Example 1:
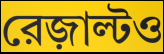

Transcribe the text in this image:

রেজ়াল্টও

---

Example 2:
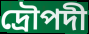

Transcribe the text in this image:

দ্রৌপদী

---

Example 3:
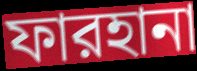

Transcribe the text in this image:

ফারহানা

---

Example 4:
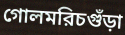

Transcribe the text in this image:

গোলমরিচগুঁড়া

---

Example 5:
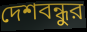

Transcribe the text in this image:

দেশবন্ধুর